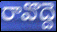
రావొద్దె